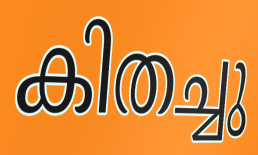
കിതച്ചു